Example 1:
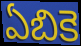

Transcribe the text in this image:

ఏబికె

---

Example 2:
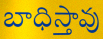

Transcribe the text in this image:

బాధిస్తావు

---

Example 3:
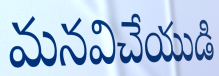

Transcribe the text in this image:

మనవిచేయుడి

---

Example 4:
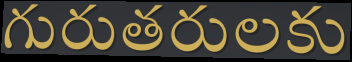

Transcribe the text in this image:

గురుతరులకు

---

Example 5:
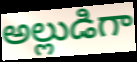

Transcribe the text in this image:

అల్లుడిగా